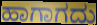
ಹಾಗಾಗದು